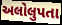
અલોલુપતા